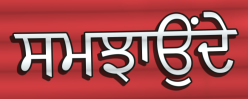
ਸਮਝਾਉਂਦੇ